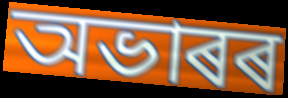
অভাৰৰ